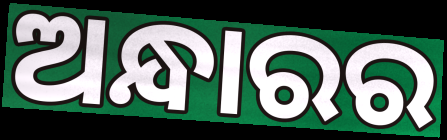
ଅନ୍ଧାରର